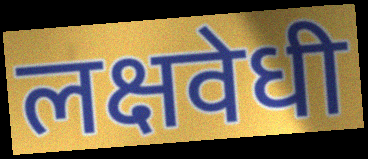
लक्षवेधी